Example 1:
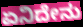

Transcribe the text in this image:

ಏನಿದೇನು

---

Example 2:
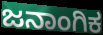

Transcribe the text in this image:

ಜನಾಂಗಿಕ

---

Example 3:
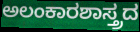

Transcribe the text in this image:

ಅಲಂಕಾರಶಾಸ್ತ್ರದ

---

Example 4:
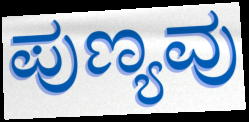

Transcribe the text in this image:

ಪುಣ್ಯವು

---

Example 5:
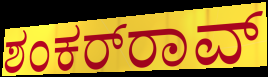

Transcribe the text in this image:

ಶಂಕರ್‌ರಾವ್